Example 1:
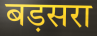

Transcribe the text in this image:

बड़सरा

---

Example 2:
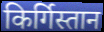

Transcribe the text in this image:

किर्गिस्तान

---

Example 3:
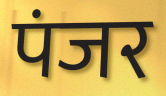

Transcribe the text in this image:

पंजर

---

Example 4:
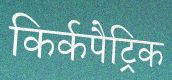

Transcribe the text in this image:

किर्कपैट्रिक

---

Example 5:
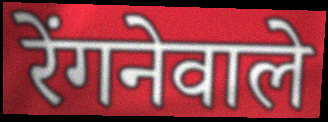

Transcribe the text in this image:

रेंगनेवाले